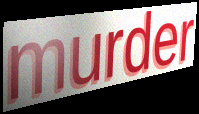
murder